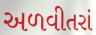
અળવીતરાં